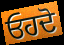
ਓਹਦੋ